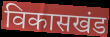
विकासखंड